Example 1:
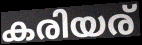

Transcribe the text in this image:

കരിയര്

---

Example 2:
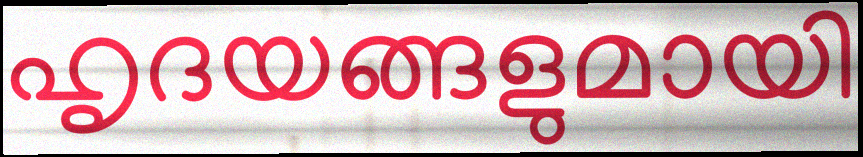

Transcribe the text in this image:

ഹൃദയങ്ങളുമായി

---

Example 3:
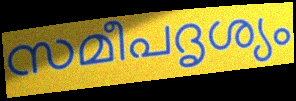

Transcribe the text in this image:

സമീപദൃശ്യം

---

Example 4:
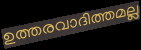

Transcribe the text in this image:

ഉത്തരവാദിത്തമല്ല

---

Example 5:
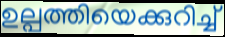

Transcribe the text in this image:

ഉല്പത്തിയെക്കുറിച്ച്